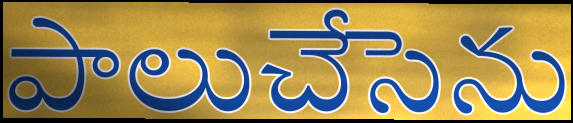
పాలుచేసెను